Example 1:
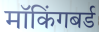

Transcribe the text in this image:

मॉकिंगबर्ड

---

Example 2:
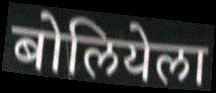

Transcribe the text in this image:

बोलियेला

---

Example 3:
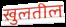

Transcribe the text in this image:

खुलतील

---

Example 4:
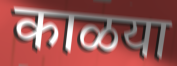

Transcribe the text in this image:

काळया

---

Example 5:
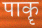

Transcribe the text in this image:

पाकॄ